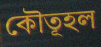
কৌতূহল